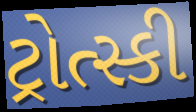
ટ્રોત્સ્કી